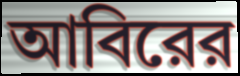
আবিরের